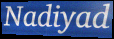
Nadiyad